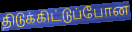
திடுக்கிட்டுப்போன